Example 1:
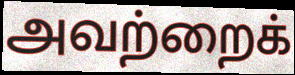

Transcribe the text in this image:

அவற்றைக்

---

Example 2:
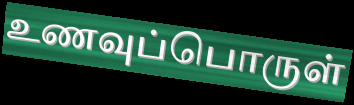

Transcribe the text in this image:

உணவுப்பொருள்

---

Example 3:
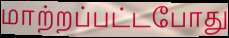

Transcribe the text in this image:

மாற்றப்பட்டபோது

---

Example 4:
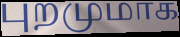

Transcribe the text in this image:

புறமுமாக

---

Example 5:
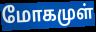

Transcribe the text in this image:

மோகமுள்